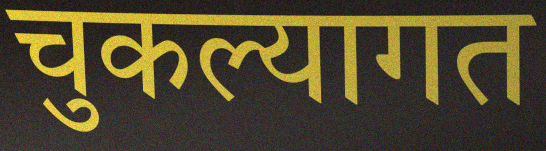
चुकल्यागत